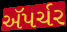
ઍપર્ચર